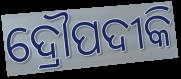
ଦ୍ରୌପଦୀକି